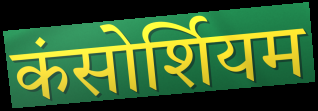
कंसोर्शियम